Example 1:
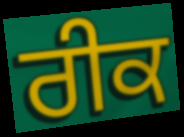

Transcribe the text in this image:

ਰੀਕ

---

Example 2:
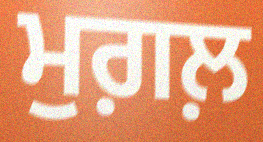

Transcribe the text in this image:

ਮੁਗ਼ਲ਼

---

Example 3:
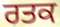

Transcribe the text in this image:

ਰਤਕ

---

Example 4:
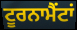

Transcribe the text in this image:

ਟੂਰਨਾਮੈਂਟਾਂ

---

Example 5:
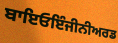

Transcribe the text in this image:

ਬਾਇਓਇੰਜੀਨੀਅਰਡ